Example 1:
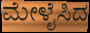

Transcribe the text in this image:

ಮೇಳೈಸಿದ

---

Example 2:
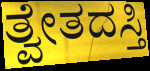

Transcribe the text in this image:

ತ್ವೇತದಸ್ತಿ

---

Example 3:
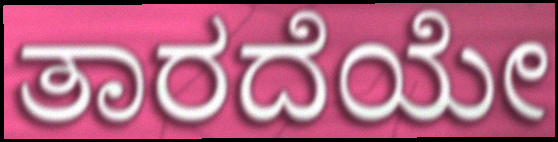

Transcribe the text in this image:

ತಾರದೆಯೇ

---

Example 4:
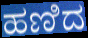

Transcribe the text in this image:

ಹಣಿದ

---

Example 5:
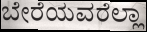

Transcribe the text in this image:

ಬೇರೆಯವರೆಲ್ಲಾ